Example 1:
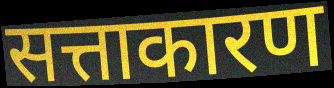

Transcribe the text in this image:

सत्ताकारण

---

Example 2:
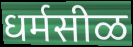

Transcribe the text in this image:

धर्मसीळ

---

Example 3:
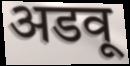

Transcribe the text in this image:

अडवू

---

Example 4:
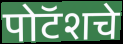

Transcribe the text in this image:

पोटॅशचे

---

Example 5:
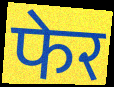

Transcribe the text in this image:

फेर